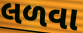
લળવા